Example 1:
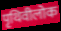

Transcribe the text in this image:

पृथिवीलोक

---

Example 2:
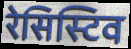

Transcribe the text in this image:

रेसिस्टिव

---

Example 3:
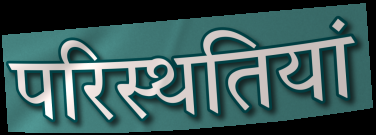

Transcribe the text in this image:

परिस्थतियां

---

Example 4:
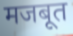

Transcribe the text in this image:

मजबूत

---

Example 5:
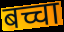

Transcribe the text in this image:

बच्चा